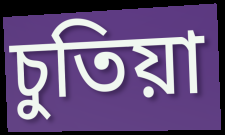
চুতিয়া